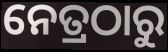
ନେତ୍ରଠାରୁ